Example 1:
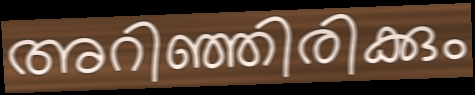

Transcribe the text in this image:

അറിഞ്ഞിരിക്കും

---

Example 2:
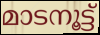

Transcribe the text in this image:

മാടനൂട്ട്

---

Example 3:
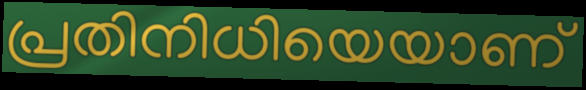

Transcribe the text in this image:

പ്രതിനിധിയെയാണ്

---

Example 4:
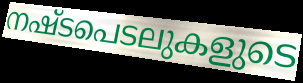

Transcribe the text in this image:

നഷ്ടപെടലുകളുടെ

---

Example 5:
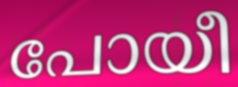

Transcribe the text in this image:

പോയീ